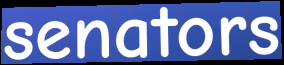
senators